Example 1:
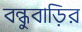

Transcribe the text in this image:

বন্ধুবাড়ির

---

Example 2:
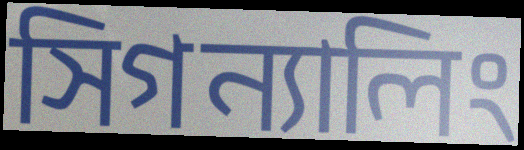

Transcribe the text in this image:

সিগন্যালিং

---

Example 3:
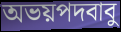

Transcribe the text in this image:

অভয়পদবাবু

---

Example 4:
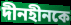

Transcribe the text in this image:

দীনহীনকে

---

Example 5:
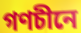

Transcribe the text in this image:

গণচীনে